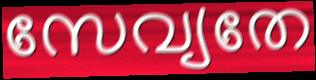
സേവ്യതേ